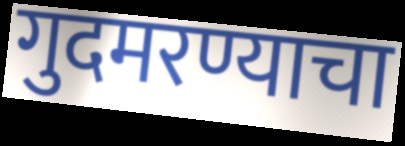
गुदमरण्याचा